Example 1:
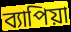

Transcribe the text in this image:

ব্যাপিয়া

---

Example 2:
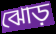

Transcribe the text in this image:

ঝোড়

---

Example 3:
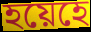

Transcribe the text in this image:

হয়েহে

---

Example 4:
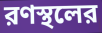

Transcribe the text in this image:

রণস্থলের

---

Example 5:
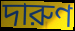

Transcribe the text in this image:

দারুণ